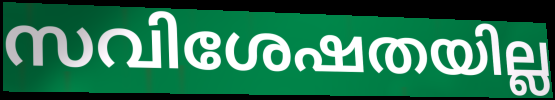
സവിശേഷതയില്ല